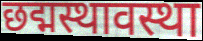
छद्मस्थावस्था